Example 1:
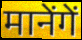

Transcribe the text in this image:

मानेंगें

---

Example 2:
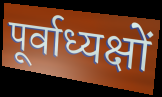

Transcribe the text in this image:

पूर्वाध्यक्षों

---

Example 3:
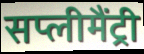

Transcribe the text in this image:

सप्लीमैंट्री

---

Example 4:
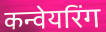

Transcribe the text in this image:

कन्वेयरिंग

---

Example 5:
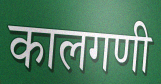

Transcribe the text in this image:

कालगणी